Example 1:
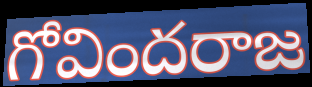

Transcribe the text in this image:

గోవిందరాజ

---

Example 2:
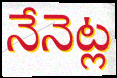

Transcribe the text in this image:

నేనెట్ల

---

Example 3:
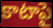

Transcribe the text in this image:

కాటాపై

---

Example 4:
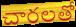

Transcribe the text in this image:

చారలతో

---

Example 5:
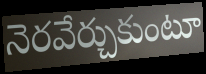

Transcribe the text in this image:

నెరవేర్చుకుంటూ